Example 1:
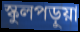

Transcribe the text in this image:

স্কুলপড়ুয়া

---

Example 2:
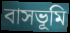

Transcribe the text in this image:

বাসভূমি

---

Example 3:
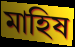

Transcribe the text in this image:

মাহিষ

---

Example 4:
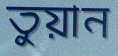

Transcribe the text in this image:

তুয়ান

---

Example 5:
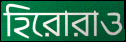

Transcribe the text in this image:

হিরোরাও